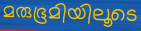
മരുഭൂമിയിലൂടെ